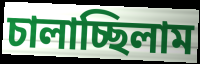
চালাচ্ছিলাম